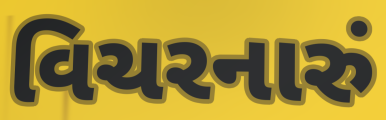
વિચરનારું